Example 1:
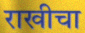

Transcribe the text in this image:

राखीचा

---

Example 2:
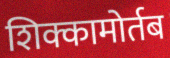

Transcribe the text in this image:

शिक्कामोर्तब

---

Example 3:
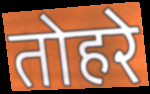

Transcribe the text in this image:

तोहरे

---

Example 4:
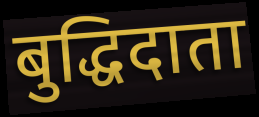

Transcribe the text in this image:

बुद्धिदाता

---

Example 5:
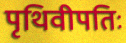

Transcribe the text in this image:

पृथिवीपतिः